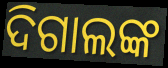
ଦିଗାଲଙ୍କ